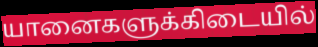
யானைகளுக்கிடையில்